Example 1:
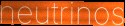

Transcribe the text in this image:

neutrinos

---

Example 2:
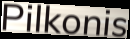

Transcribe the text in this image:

Pilkonis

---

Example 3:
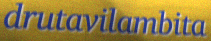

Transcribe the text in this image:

drutavilambita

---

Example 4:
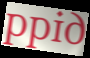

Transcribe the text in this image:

ppid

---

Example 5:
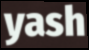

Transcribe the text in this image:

yash